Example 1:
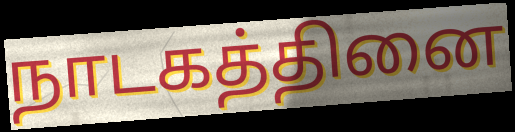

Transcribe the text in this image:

நாடகத்தினை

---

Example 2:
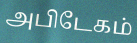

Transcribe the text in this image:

அபிடேகம்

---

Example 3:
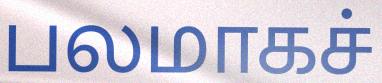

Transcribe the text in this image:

பலமாகச்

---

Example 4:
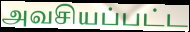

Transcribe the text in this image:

அவசியப்பட்ட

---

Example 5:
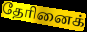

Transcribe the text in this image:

தேரினைக்